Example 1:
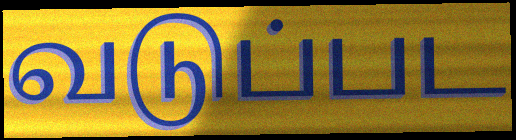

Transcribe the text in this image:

வடுப்பட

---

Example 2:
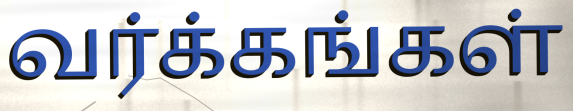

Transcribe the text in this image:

வர்க்கங்கள்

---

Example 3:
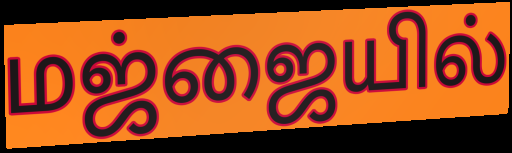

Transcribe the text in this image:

மஜ்ஜையில்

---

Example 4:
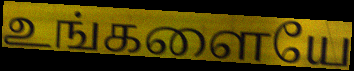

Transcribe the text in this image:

உங்களையே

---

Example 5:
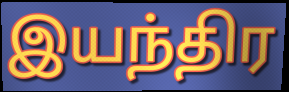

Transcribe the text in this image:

இயந்திர